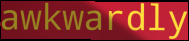
awkwardly